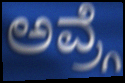
ಅವ್ರ್ಗೆ